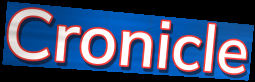
Cronicle